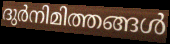
ദുർനിമിത്തങ്ങൾ